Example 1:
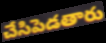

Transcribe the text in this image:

చేసిపెడతారు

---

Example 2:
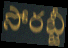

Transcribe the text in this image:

సోరబ్జీ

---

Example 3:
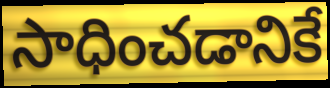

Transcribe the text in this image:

సాధించడానికే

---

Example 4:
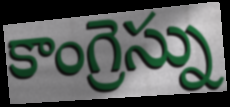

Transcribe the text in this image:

కాంగ్రెస్ను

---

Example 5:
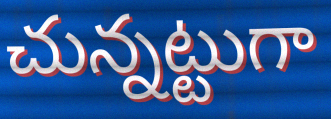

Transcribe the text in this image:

చున్నట్టుగా